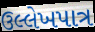
ઉલ્લેખપાત્ર